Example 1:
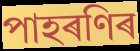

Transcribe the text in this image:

পাহৰণিৰ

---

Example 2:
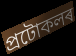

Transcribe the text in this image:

প্ৰটোকলৰ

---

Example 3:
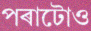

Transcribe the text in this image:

পৰাটোও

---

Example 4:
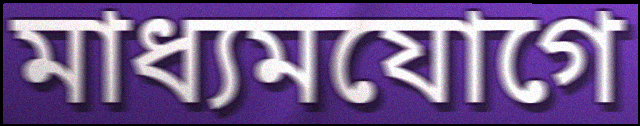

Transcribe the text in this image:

মাধ্যমযোগে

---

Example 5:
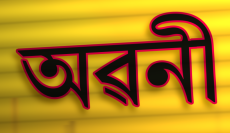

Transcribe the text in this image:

অৱনী